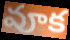
వూక